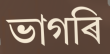
ভাগৰি